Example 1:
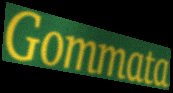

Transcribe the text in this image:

Gommata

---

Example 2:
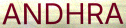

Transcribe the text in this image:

ANDHRA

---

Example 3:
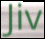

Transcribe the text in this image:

Jiv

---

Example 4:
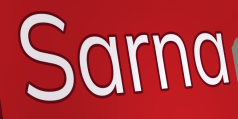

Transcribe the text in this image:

Sarna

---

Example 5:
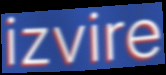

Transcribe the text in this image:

izvire